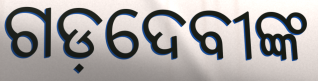
ଗଡ଼ଦେବୀଙ୍କ